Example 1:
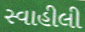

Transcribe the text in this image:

સ્વાહીલી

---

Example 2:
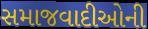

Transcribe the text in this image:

સમાજવાદીઓની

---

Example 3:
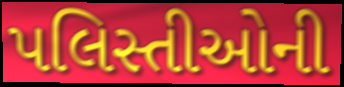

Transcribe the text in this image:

પલિસ્તીઓની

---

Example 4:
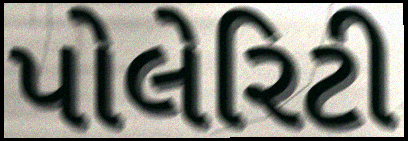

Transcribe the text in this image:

પોલેરિટી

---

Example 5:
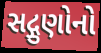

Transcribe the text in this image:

સદ્ગુણોનો